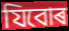
যিবোৰ